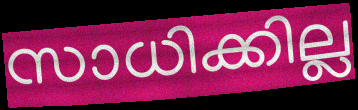
സാധിക്കില്ല